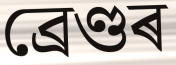
ব্ৰেণ্ডৰ